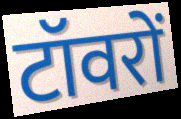
टॉवरों